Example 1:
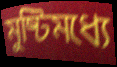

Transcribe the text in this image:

মুষ্টিমধ্যে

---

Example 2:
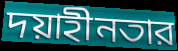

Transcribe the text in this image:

দয়াহীনতার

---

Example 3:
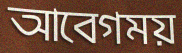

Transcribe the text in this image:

আবেগময়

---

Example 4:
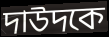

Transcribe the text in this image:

দাউদকে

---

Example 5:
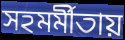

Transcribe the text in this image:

সহমর্মীতায়